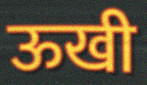
ऊखी